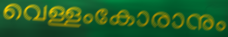
വെള്ളംകോരാനും